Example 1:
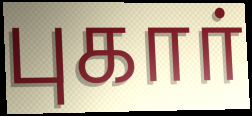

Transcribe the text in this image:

புகார்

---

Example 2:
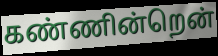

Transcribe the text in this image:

கண்ணின்றென்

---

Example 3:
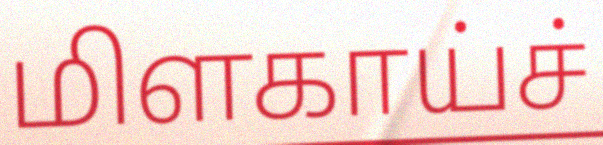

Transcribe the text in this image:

மிளகாய்ச்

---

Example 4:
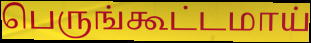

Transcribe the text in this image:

பெருங்கூட்டமாய்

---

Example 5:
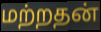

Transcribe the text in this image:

மற்றதன்